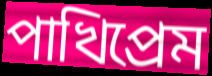
পাখিপ্রেম